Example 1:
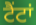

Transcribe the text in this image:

ਟੈਂਟਾਂ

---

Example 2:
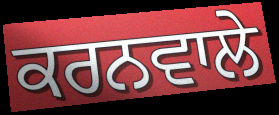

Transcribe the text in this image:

ਕਰਨਵਾਲੇ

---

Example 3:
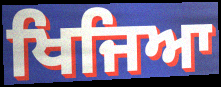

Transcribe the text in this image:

ਖਿਜਿਆ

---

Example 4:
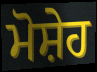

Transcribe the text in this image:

ਮੋਸ਼ੇਹ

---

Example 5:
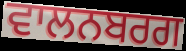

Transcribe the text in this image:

ਵਾਲਨਬਰਗ